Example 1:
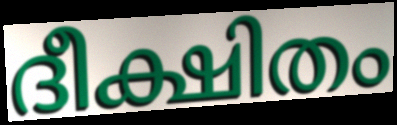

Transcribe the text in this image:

ദീക്ഷിതം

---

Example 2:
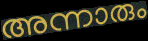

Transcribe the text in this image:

അന്നാരും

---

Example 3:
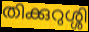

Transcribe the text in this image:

തിക്കുറുശ്ശി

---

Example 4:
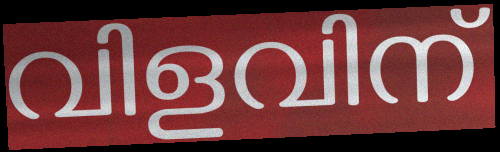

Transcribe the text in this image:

വിളവിന്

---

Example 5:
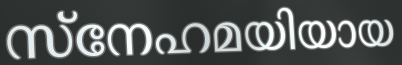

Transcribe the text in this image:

സ്നേഹമയിയായ